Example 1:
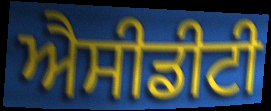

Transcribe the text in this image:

ਐਸੀਡੀਟੀ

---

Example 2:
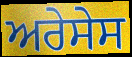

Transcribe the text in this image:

ਅਰੇਸੇਸ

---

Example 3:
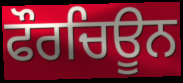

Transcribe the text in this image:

ਫੌਰਚਿਊਨ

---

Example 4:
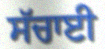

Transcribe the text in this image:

ਸੱਚਾਈ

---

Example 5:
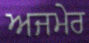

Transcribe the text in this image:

ਅਜਮੇਰ